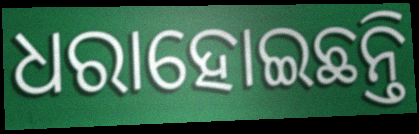
ଧରାହୋଇଛନ୍ତି